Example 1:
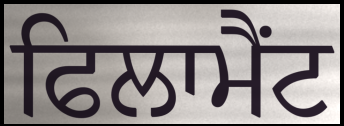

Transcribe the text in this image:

ਫਿਲਾਮੈਂਟ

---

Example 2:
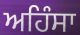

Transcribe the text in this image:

ਅਹਿੰਸਾ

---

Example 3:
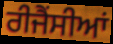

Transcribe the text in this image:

ਰੀਜੈਂਸੀਆਂ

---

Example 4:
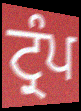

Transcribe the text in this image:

ਟ੍ਰੰਪ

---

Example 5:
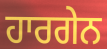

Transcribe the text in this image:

ਹਾਰਗੇਨ